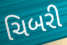
ચિબરી